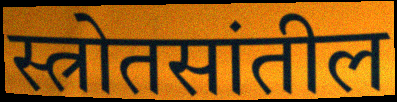
स्त्रोतसांतील